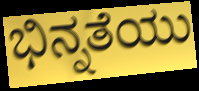
ಭಿನ್ನತೆಯು